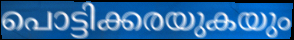
പൊട്ടിക്കരയുകയും